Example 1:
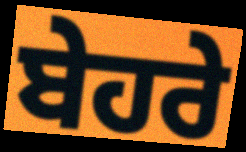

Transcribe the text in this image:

ਬੇਹਰੇ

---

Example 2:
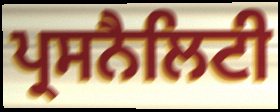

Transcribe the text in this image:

ਪ੍ਰਸਨੈਲਿਟੀ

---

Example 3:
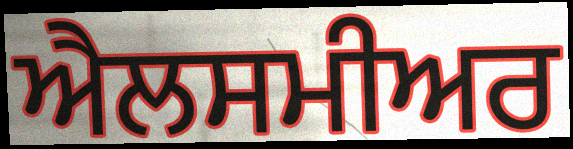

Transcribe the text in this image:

ਐਲਸਮੀਅਰ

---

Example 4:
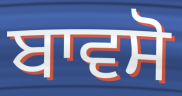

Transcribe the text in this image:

ਬਾਵਸੋ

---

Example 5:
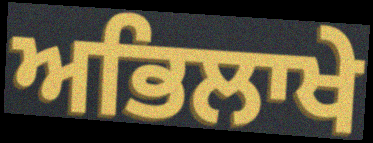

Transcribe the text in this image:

ਅਭਿਲਾਖੇ